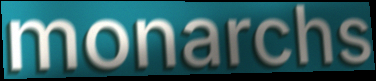
monarchs